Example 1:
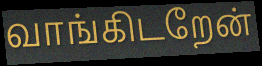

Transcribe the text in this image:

வாங்கிடறேன்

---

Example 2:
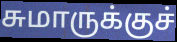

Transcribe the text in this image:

சுமாருக்குச்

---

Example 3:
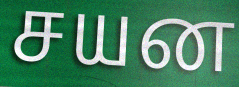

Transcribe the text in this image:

சயன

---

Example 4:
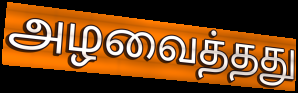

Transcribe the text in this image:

அழவைத்தது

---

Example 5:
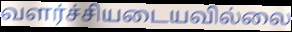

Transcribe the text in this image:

வளர்ச்சியடையவில்லை